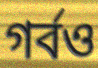
গর্বও